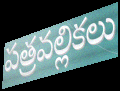
పత్రవల్లికలు